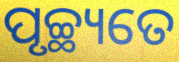
ପୃଚ୍ଛ୍ୟତେ